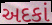
અદકાં